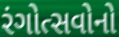
રંગોત્સવોનો